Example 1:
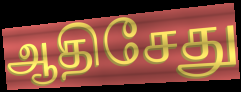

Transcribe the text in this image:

ஆதிசேது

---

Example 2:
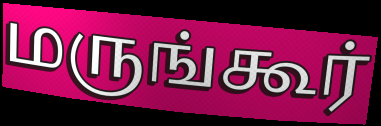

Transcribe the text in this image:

மருங்கூர்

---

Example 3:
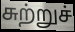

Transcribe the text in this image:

சுற்றுச்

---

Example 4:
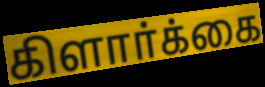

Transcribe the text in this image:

கிளார்க்கை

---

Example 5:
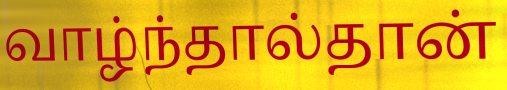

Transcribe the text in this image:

வாழ்ந்தால்தான்